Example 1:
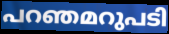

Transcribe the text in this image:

പറഞമറുപടി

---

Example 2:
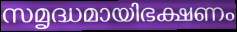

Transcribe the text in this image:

സമൃദ്ധമായിഭക്ഷണം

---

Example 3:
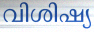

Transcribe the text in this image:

വിശിഷ്യ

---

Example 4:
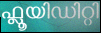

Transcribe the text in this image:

ഫ്ലൂയിഡിറ്റി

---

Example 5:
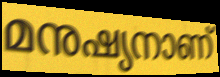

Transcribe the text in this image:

മനുഷ്യനാണ്